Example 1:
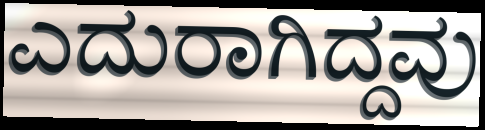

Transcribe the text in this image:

ಎದುರಾಗಿದ್ದವು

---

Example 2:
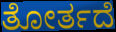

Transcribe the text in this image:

ತೋರ್ತದೆ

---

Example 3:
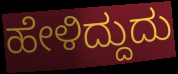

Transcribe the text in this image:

ಹೇಳಿದ್ದುದು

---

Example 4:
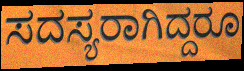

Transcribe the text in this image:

ಸದಸ್ಯರಾಗಿದ್ದರೂ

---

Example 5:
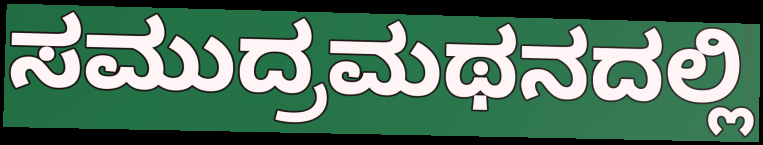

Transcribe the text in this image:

ಸಮುದ್ರಮಥನದಲ್ಲಿ